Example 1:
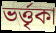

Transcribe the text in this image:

ভর্ত্তৃকা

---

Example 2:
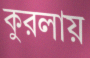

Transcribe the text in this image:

কুরলায়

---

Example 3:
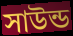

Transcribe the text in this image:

সাউন্ড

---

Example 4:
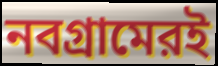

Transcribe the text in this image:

নবগ্রামেরই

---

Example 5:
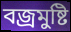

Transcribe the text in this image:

বজ্রমুষ্টি